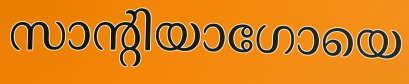
സാന്റിയാഗോയെ